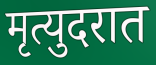
मृत्युदरात